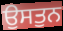
ਉਸਤੁਨ